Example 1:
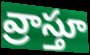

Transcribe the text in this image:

వ్రాస్తూ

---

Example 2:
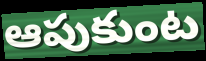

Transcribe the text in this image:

ఆపుకుంట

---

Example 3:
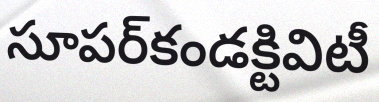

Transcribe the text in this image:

సూపర్‌కండక్టివిటీ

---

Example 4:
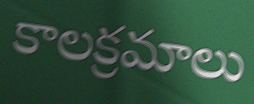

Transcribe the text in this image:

కాలక్రమాలు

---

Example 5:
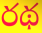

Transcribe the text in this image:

రథ